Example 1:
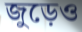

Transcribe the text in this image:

জুড়েও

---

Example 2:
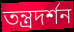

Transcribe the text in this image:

তন্ত্রদর্শন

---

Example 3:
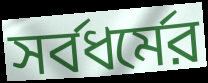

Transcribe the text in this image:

সর্বধর্মের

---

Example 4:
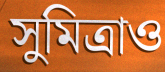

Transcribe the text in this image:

সুমিত্রাও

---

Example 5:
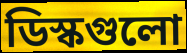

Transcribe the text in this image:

ডিস্কগুলো